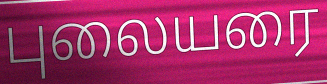
புலையரை